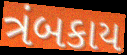
ત્રંબકાય